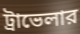
ট্রাভেলার